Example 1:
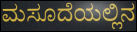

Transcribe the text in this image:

ಮಸೂದೆಯಲ್ಲಿನ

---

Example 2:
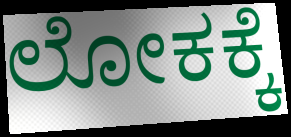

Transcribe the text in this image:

ಲೋಕಕ್ಕೆ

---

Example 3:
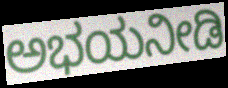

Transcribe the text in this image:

ಅಭಯನೀಡಿ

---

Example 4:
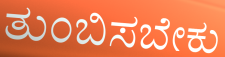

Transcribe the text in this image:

ತುಂಬಿಸಬೇಕು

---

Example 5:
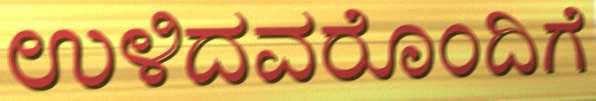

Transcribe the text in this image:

ಉಳಿದವರೊಂದಿಗೆ